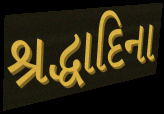
શ્રદ્ધાદિના